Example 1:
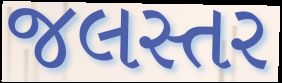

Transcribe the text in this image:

જલસ્તર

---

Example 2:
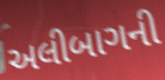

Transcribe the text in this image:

અલીબાગની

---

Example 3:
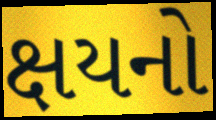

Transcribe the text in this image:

ક્ષયનો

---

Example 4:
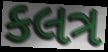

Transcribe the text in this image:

કલત્ર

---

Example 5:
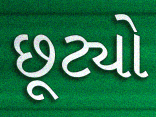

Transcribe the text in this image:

છૂટ્યો